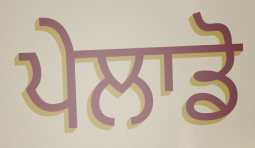
ਪੇਲਾਡੋ